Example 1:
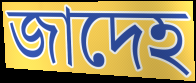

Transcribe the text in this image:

জাদেহ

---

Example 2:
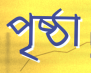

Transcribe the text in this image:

পৃষ্ঠা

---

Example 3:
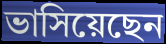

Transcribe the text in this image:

ভাসিয়েছেন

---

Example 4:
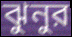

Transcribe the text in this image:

ঝুনুর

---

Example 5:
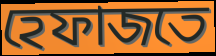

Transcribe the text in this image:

হেফাজতে